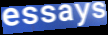
essays